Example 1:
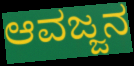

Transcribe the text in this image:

ಆವಜ್ಜನ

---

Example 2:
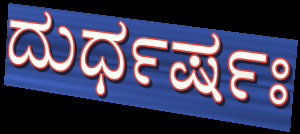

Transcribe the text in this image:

ದುರ್ಧರ್ಷಃ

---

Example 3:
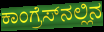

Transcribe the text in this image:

ಕಾಂಗ್ರೆಸ್‌ನಲ್ಲಿನ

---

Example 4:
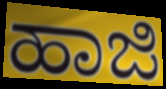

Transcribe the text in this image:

ಹಾಜಿ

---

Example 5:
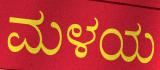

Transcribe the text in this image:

ಮಳಯ